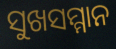
ସୁଖସମ୍ମାନ